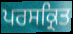
ਪਰਸਕ੍ਰਿਤ